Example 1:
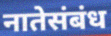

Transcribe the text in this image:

नातेसंबंध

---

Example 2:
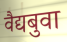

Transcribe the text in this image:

वैद्यबुवा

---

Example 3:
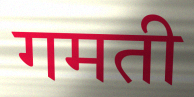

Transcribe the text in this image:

गमती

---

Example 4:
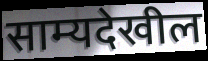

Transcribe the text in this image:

साम्यदेखील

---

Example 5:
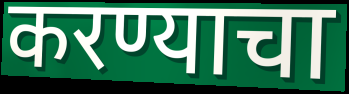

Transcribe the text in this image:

करण्याचा